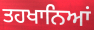
ਤਹਖਾਨਿਆਂ